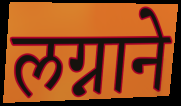
लग्नाने